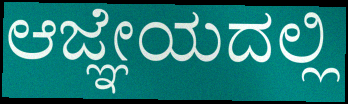
ಆಜ್ಞೇಯದಲ್ಲಿ